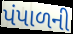
પંપાળની